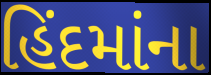
હિંદમાંના